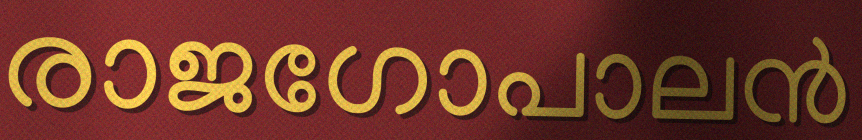
രാജഗോപാലൻ